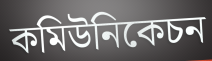
কমিউনিকেচন